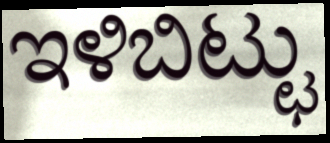
ಇಳಿಬಿಟ್ಟು